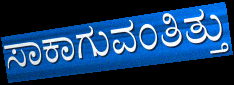
ಸಾಕಾಗುವಂತಿತ್ತು